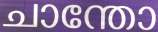
ചാന്തോ